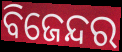
ବିଜେନ୍ଦର